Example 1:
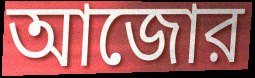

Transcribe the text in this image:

আজোর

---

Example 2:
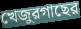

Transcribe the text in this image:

খেজুরগাছের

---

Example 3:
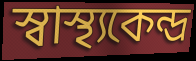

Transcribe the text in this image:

স্বাস্থ্যকেন্দ্র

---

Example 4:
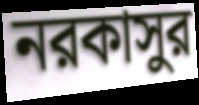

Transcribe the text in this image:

নরকাসুর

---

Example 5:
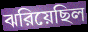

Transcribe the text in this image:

ঝরিয়েছিল